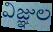
విజ్ఞుల